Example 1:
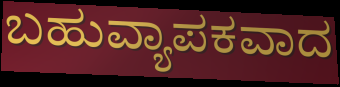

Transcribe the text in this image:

ಬಹುವ್ಯಾಪಕವಾದ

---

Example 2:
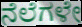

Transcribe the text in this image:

ನೆಲೆಗಳೇ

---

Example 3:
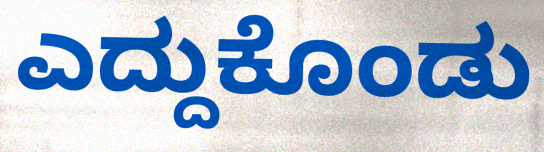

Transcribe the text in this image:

ಎದ್ದುಕೊಂಡು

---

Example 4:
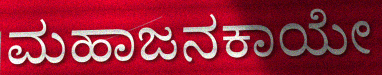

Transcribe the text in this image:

ಮಹಾಜನಕಾಯೇ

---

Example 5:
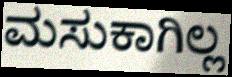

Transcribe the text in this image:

ಮಸುಕಾಗಿಲ್ಲ